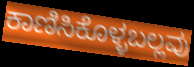
ಕಾಣಿಸಿಕೊಳ್ಳಬಲ್ಲವು